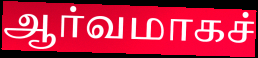
ஆர்வமாகச்